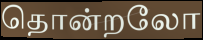
தொன்றலோ